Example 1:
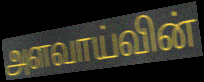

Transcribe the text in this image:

அளவாய்வின்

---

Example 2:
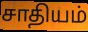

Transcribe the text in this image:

சாதியம்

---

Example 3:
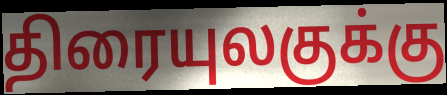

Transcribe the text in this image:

திரையுலகுக்கு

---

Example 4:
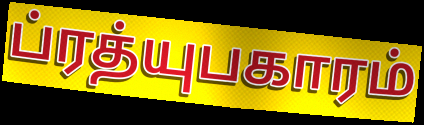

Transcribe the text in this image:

ப்ரத்யுபகாரம்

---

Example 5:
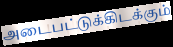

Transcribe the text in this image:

அடைபட்டுக்கிடக்கும்